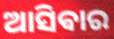
ଆସିଵାର